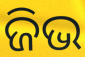
ଜିଭ